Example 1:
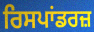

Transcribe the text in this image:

ਰਿਸਪਾਂਡਰਜ਼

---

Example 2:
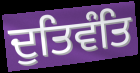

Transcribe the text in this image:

ਦੁਤਿਵੰਤਿ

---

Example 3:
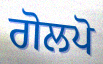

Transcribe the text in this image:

ਗੋਲਪੋ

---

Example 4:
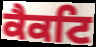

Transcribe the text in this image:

ਕੈਕਟਿ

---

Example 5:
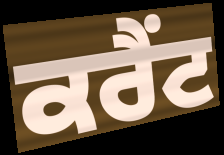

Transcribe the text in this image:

ਕਰੈਂਟ